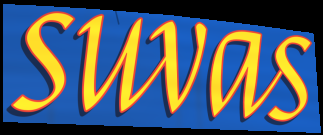
suvas